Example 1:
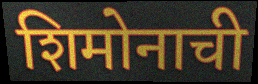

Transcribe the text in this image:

शिमोनाची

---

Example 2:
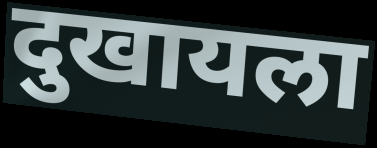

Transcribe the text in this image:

दुखायला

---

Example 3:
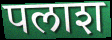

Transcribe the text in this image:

पलाश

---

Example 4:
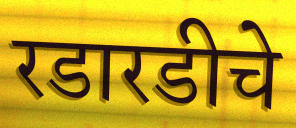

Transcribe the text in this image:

रडारडीचे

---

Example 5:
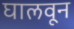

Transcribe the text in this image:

घालवून